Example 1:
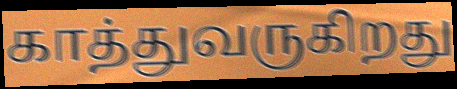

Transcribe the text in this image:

காத்துவருகிறது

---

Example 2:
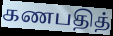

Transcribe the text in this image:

கணபதித்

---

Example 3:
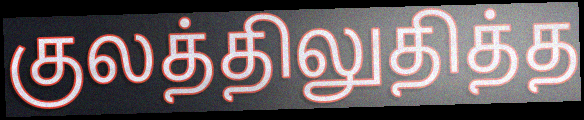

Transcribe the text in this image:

குலத்திலுதித்த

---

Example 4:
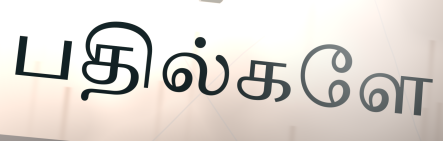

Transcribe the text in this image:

பதில்களே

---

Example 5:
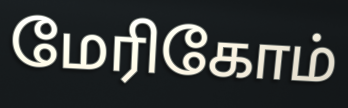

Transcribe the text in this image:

மேரிகோம்